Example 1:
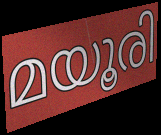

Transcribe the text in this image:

മയൂരി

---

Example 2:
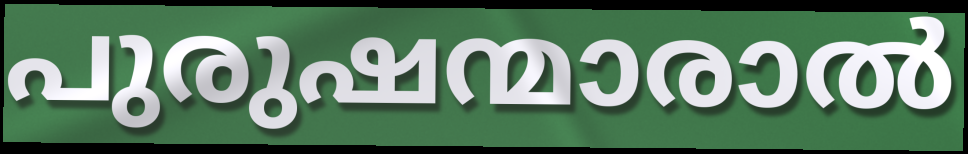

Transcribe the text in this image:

പുരുഷന്മാരാൽ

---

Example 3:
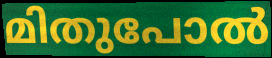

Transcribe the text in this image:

മിതുപോൽ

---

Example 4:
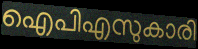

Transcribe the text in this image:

ഐപിഎസുകാരി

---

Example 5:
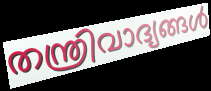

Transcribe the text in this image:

തന്ത്രിവാദ്യങ്ങൾ